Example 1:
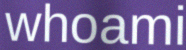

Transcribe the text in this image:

whoami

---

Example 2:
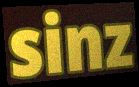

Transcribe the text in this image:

sinz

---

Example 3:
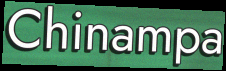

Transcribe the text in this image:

Chinampa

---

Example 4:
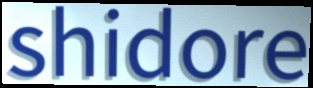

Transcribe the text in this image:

shidore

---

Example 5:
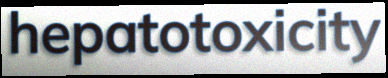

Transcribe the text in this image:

hepatotoxicity